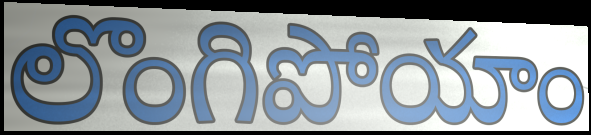
లొంగిపోయాం